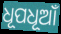
ଧୂପଧୂଆଁ